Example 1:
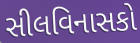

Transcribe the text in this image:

સીલવિનાસકો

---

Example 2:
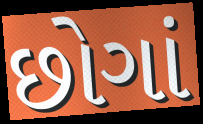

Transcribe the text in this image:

છોગાં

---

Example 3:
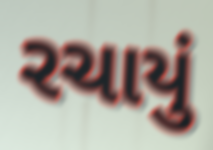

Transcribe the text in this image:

રચાયું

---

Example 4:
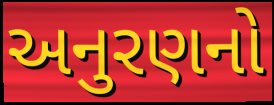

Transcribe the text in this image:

અનુરણનો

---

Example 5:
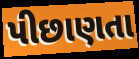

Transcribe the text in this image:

પીછાણતા